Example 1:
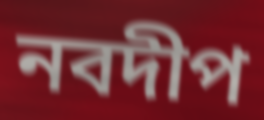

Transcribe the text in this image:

নবদীপ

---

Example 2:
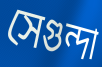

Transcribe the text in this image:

সেগুন্দা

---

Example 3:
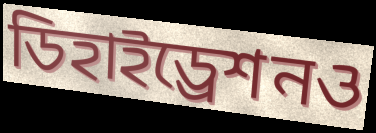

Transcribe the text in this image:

ডিহাইড্রেশনও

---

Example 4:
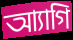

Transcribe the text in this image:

আ্যাগি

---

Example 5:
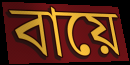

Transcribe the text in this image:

বায়ে